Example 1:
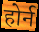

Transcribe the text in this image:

होर्न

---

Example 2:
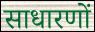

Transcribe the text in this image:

साधारणों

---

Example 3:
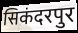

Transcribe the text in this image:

सिकंदरपुर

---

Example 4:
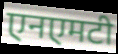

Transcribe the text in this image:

एनएमटी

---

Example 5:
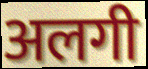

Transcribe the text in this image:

अलगी